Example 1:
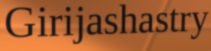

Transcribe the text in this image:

Girijashastry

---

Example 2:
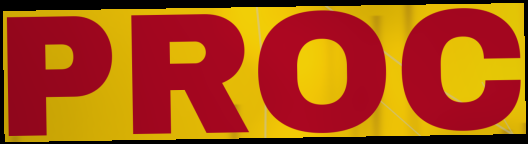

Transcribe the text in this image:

PROC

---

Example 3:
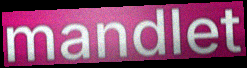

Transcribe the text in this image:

mandlet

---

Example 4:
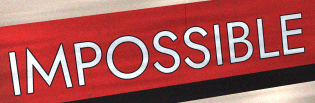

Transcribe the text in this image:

IMPOSSIBLE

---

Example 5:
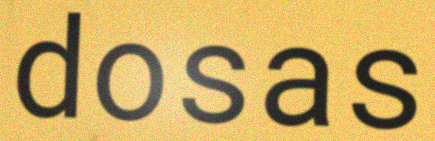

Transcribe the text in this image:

dosas